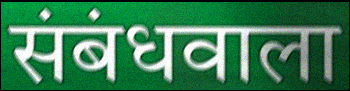
संबंधवाला